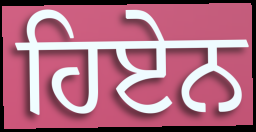
ਹਿਏਨ